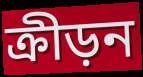
ক্রীড়ন